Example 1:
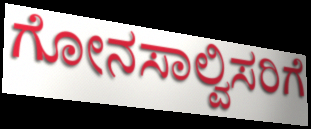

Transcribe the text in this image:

ಗೋನಸಾಲ್ವಿಸರಿಗೆ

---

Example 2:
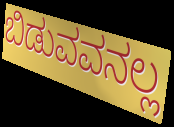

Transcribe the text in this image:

ಬಿಡುವವನಲ್ಲ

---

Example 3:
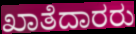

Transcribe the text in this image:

ಖಾತೆದಾರರು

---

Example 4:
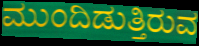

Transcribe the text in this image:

ಮುಂದಿಡುತ್ತಿರುವ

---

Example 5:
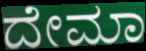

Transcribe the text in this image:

ದೇಮಾ